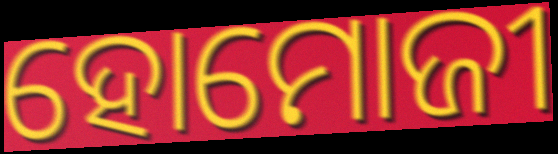
ହୋମୋଜୀ